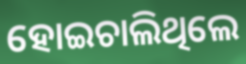
ହୋଇଚାଲିଥିଲେ